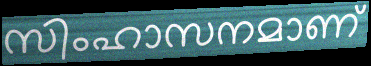
സിംഹാസനമാണ്